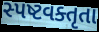
સ્પષ્ટવક્તૃતા